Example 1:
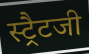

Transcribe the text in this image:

स्‍ट्रैटजी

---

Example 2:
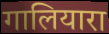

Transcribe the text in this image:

गालियारा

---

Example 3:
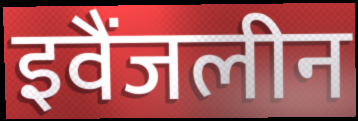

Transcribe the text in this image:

इवैंजलीन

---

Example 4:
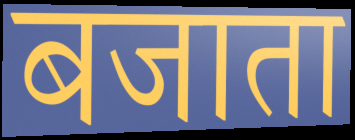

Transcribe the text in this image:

बजाता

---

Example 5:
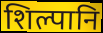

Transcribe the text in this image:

शिल्पानि